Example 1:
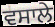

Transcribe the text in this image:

ਵਸਾਲੇ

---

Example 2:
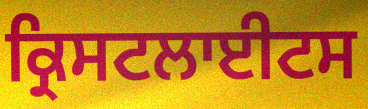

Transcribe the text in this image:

ਕ੍ਰਿਸਟਲਾਈਟਸ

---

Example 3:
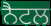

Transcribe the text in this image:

ਨੈਟਲ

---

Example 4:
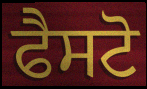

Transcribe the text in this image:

ਫੈਸਟੋ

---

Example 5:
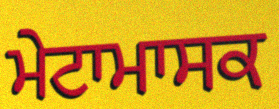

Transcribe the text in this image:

ਮੇਟਾਮਾਸਕ